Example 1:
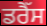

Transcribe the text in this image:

ਡਰੈੱਸ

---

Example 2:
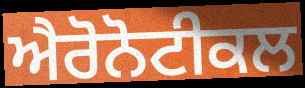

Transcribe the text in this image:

ਐਰੋਨੋਟੀਕਲ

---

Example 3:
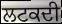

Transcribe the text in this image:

ਲਟਕਦੀ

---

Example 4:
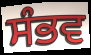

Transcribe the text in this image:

ਸੰਭਵ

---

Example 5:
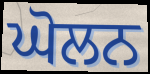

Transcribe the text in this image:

ਘੋਲਨ